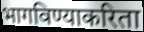
भागविण्याकरिता